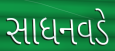
સાધનવડે